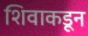
शिवाकडून